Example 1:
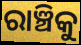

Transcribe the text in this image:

ରାଞ୍ଚିକୁ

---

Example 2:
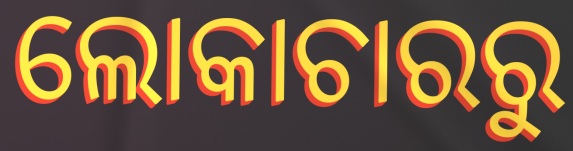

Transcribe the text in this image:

ଲୋକାଚାରରୁ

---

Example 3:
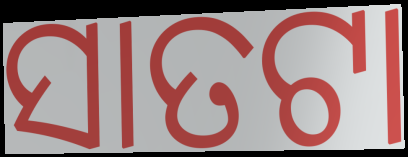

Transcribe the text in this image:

ସାତଟା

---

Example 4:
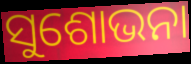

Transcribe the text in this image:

ସୁଶୋଭନା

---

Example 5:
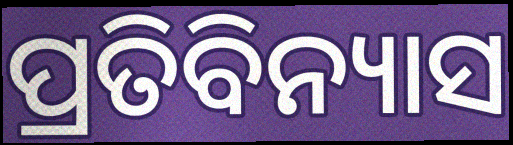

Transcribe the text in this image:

ପ୍ରତିବିନ୍ୟାସ